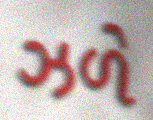
ઝળે